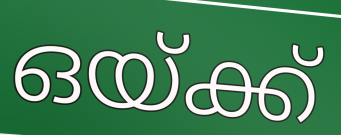
ഒയ്ക്ക്